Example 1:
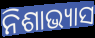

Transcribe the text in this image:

ନିଶାଭ୍ୟାସ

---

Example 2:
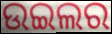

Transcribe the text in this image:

ଉଇଲର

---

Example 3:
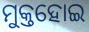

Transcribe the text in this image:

ମୁକ୍ତହୋଇ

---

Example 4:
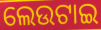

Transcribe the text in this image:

ଲେଉଟାଇ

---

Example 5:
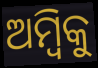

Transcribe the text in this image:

ଅମ୍ବିକୁ